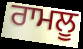
ਰਾਮਲੂ